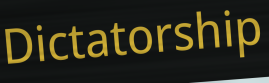
Dictatorship